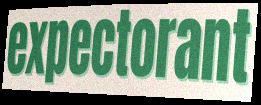
expectorant